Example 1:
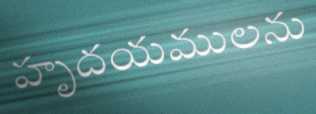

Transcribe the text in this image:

హృదయములను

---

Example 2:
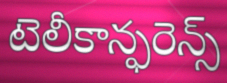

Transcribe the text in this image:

టెలీకాన్ఫరెన్స్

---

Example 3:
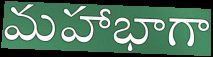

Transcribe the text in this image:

మహాభాగా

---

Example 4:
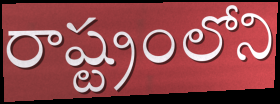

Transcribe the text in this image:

రాష్ట్రంలోని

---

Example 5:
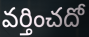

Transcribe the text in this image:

వర్తించదో